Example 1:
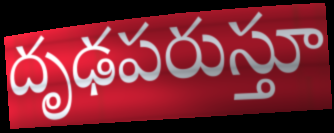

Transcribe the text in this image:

దృఢపరుస్తూ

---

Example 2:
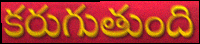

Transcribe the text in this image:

కరుగుతుంది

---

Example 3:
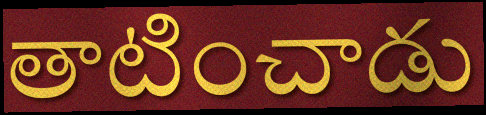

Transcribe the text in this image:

తాటించాడు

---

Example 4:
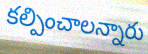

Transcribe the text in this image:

కల్పించాలన్నారు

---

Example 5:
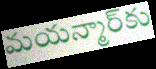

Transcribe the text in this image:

మయన్మార్‌కు